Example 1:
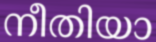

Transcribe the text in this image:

നീതിയാ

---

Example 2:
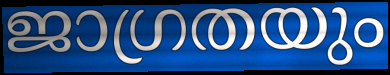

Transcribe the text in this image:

ജാഗ്രതയും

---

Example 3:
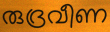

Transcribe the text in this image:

രുദ്രവീണ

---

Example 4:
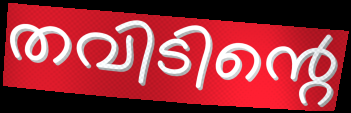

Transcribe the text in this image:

തവിടിന്റെ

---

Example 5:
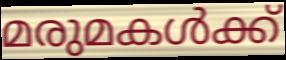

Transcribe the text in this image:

മരുമകൾക്ക്